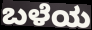
ಬಳೆಯ